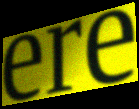
ere